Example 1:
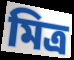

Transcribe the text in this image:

মিত্ৰ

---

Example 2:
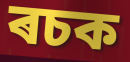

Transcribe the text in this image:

ৰচক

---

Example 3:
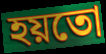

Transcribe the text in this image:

হয়তো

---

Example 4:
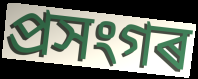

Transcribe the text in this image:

প্ৰসংগৰ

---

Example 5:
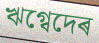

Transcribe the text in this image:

ঋগ্বেদেৰ